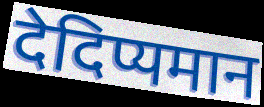
देदिप्यमान